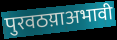
पुरवठय़ाअभावी